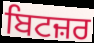
ਬਿਟਜ਼ਰ